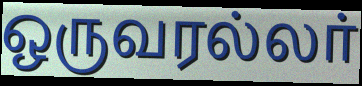
ஒருவரல்லர்